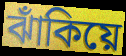
ঝাঁকিয়ে